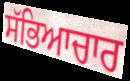
ਸੱਭਿਆਚਾਰ